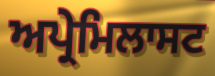
ਅਪ੍ਰੇਮਿਲਾਸਟ